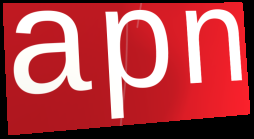
apn